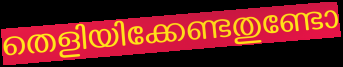
തെളിയിക്കേണ്ടതുണ്ടോ